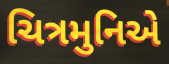
ચિત્રમુનિએ